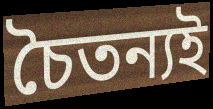
চৈতন্যই